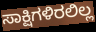
ಸಾಕ್ಷಿಗಳಿರಲಿಲ್ಲ